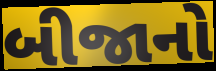
બીજાનો